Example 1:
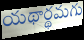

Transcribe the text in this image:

యథార్థమగు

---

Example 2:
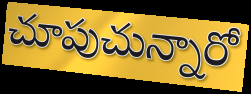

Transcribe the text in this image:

చూపుచున్నారో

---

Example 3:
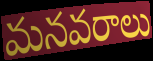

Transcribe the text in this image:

మనవరాలు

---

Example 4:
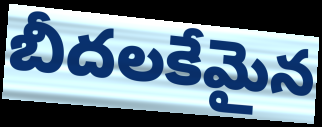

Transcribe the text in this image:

బీదలకేమైన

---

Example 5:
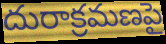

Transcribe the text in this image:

దురాక్రమణపై